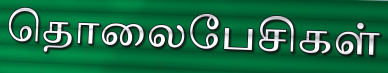
தொலைபேசிகள்